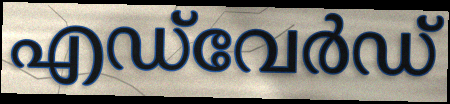
എഡ്‌വേർഡ്